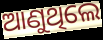
ଆଣୁଥିଲେ